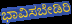
ಭಾವಿಸಬೇಡಿರಿ